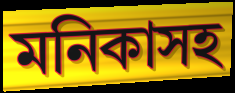
মনিকাসহ